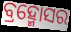
ବ୍ରହ୍ମୋସର